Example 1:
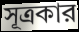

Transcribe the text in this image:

সূত্রকার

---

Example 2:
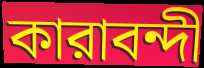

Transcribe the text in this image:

কারাবন্দী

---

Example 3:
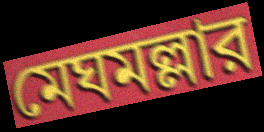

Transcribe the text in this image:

মেঘমল্লার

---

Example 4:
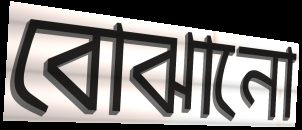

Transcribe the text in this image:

বোঝানো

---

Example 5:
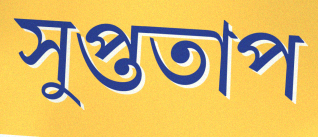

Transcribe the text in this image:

সুপ্ততাপ